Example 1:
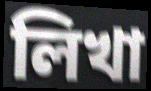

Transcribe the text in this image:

লিখা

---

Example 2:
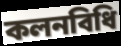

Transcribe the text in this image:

কলনবিধি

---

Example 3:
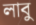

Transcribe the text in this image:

লাবু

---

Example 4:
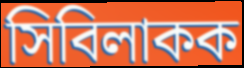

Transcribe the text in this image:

সিবিলাকক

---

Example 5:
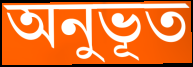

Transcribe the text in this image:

অনুভূত